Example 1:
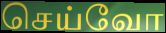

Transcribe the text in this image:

செய்வோ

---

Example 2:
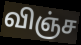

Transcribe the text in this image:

விஞ்ச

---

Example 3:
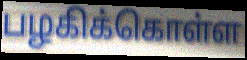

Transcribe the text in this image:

பழகிக்கொள்ள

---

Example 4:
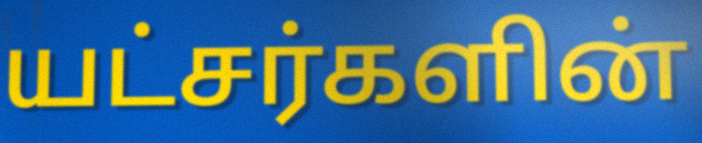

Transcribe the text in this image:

யட்சர்களின்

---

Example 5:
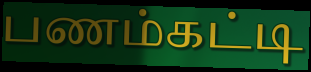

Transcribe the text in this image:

பணம்கட்டி